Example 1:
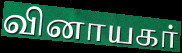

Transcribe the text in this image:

வினாயகர்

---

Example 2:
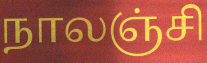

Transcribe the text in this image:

நாலஞ்சி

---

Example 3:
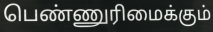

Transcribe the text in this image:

பெண்ணுரிமைக்கும்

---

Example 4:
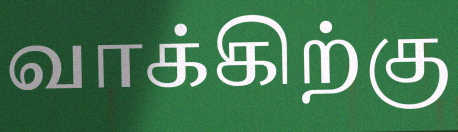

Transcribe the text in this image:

வாக்கிற்கு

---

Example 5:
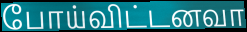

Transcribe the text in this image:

போய்விட்டனவா